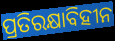
ପ୍ରତିରକ୍ଷାବିହୀନ